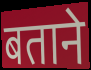
बताने